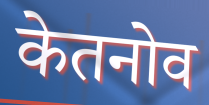
केतनोव